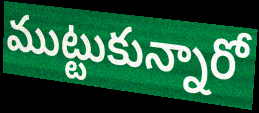
ముట్టుకున్నారో